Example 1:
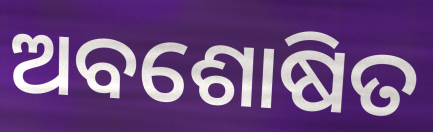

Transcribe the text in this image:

ଅବଶୋଷିତ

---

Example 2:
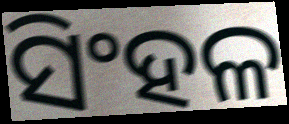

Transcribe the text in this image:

ସିଂହଳ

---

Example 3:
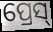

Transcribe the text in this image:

ପ୍ରେସ୍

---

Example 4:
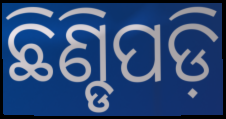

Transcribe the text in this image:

ଛିଣ୍ଡିପଡ଼ି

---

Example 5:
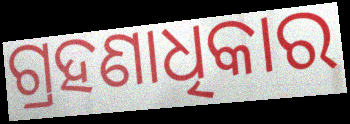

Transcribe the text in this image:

ଗ୍ରହଣାଧିକାର